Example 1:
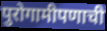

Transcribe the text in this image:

पुरोगामीपणाची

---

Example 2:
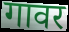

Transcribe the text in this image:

गावर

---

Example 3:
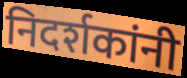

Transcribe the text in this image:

निदर्शकांनी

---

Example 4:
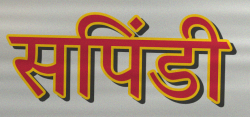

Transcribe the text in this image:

सपिंडी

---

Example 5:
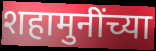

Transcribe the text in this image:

शहामुनींच्या